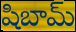
షిబామ్